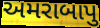
અમરાબાપુ